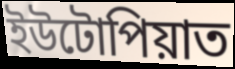
ইউটোপিয়াত